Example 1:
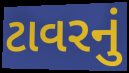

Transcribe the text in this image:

ટાવરનું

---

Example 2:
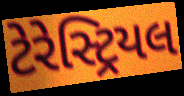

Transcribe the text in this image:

ટેરેસ્ટ્રિયલ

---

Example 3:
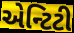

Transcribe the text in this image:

એન્ટિટી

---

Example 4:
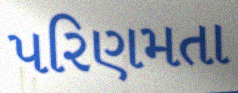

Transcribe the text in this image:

પરિણમતા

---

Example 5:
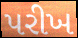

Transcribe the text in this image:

પરીખ